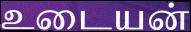
உடையன்